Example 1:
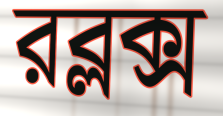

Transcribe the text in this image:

রব্লক্স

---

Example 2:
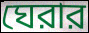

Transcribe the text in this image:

ঘেরার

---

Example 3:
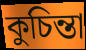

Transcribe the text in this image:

কুচিন্তা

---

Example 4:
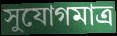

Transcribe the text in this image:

সুযোগমাত্র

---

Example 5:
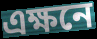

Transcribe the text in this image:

এক্ষনে